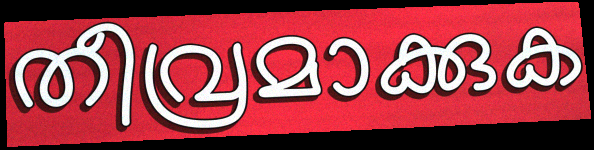
തീവ്രമാക്കുക